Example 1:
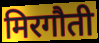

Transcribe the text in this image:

मिरगौती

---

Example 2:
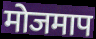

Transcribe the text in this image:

मोजमाप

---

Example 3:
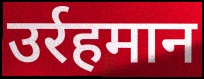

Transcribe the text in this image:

उर्रहमान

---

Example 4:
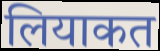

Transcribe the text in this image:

लियाकत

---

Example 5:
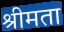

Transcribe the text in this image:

श्रीमता